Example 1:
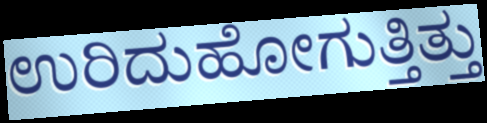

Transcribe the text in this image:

ಉರಿದುಹೋಗುತ್ತಿತ್ತು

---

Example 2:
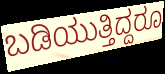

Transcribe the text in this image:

ಬಡಿಯುತ್ತಿದ್ದರೂ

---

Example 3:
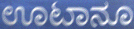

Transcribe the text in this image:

ಊಟಾನೂ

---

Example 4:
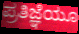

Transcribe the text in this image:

ಪ್ರತಿಜ್ಞೆಯೂ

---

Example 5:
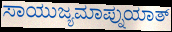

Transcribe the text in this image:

ಸಾಯುಜ್ಯಮಾಪ್ನುಯಾತ್